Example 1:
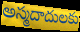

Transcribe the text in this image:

అస్మదాదులకు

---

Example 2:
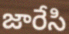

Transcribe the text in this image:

జారేసి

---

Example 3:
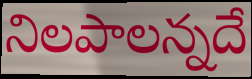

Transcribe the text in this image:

నిలపాలన్నదే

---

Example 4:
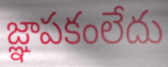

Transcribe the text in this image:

జ్ఞాపకంలేదు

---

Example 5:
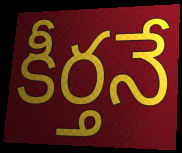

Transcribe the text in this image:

కీర్తనే